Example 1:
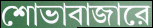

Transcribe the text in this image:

শোভাবাজারে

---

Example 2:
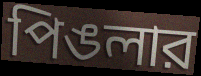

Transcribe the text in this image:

পিঙলার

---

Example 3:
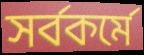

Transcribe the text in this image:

সর্বকর্মে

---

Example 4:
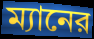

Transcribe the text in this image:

ম্যানের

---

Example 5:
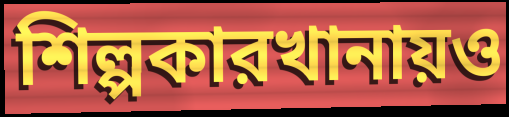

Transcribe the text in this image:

শিল্পকারখানায়ও